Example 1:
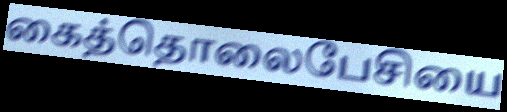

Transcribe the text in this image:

கைத்தொலைபேசியை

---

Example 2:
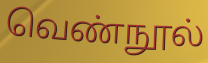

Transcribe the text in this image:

வெண்நூல்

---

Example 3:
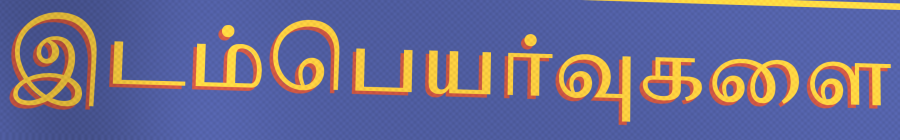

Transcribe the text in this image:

இடம்பெயர்வுகளை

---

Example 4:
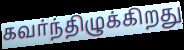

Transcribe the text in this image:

கவர்ந்திழுக்கிறது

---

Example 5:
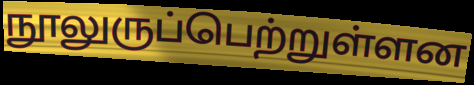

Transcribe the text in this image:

நூலுருப்பெற்றுள்ளன